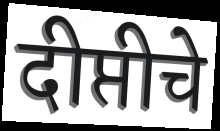
दीप्तीचे